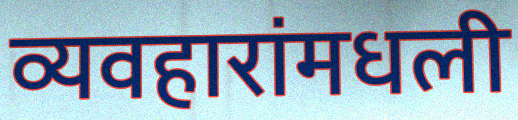
व्यवहारांमधली